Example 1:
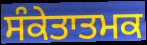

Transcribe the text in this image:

ਸੰਕੇਤਾਤਮਕ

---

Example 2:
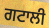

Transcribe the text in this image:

ਗਟਾਲੀ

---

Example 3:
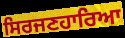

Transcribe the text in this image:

ਸਿਰਜਣਹਾਰਿਆ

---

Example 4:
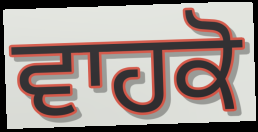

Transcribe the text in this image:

ਵਾਹਕੋ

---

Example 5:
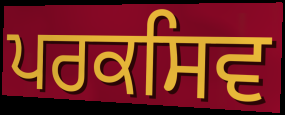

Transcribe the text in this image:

ਪਰਕਸਿਵ